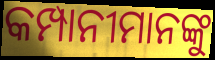
କମ୍ପାନୀମାନଙ୍କୁ